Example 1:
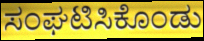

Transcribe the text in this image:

ಸಂಘಟಿಸಿಕೊಂಡು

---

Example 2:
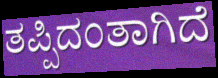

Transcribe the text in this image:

ತಪ್ಪಿದಂತಾಗಿದೆ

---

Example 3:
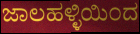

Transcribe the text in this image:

ಜಾಲಹಳ್ಳಿಯಿಂದ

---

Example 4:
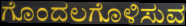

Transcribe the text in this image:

ಗೊಂದಲಗೊಳಿಸುವ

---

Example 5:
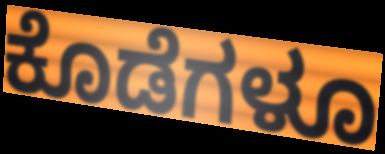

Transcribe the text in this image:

ಕೊಡೆಗಳೂ